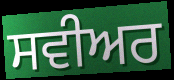
ਸਵੀਅਰ